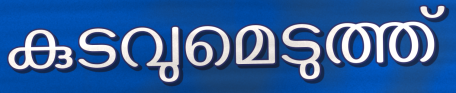
കുടവുമെടുത്ത്